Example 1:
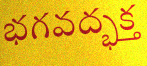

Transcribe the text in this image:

భగవద్భక్త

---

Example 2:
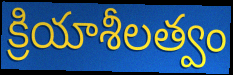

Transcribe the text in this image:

క్రియాశీలత్వం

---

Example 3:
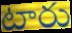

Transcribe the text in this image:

టారు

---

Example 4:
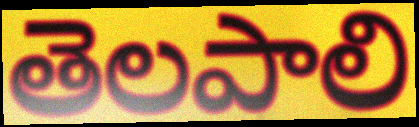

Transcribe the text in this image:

తెలపాలి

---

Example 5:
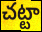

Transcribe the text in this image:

చట్టా